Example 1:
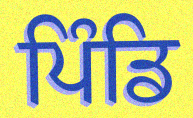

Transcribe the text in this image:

ਪਿੰਡਿ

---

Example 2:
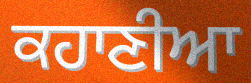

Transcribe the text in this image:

ਕਹਾਣੀਆ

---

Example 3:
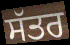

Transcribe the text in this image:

ਸੱਤਰ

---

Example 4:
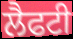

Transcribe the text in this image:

ਲੈਫਟੀ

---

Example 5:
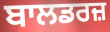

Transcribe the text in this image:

ਬਾਲਡਰਜ਼